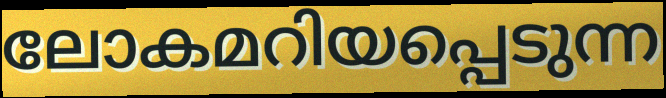
ലോകമറിയപ്പെടുന്ന